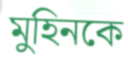
মুহিনকে